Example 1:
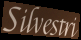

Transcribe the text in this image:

Silvestri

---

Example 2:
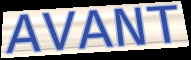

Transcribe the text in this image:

AVANT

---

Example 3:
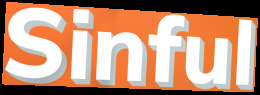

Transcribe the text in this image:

Sinful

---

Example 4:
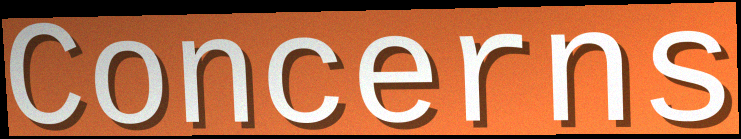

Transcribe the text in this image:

Concerns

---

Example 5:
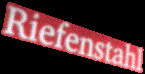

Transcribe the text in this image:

Riefenstahl